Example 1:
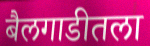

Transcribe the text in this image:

बैलगाडीतला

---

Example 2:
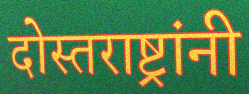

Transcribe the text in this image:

दोस्तराष्ट्रांनी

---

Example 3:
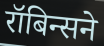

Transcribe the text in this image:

रॉबिन्सने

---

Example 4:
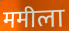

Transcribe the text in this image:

ममीला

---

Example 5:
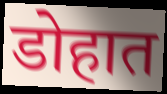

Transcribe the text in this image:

डोहात